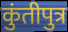
कुंतीपुत्र